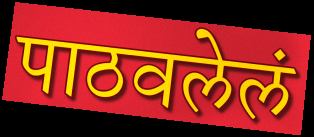
पाठवलेलं